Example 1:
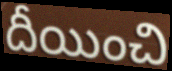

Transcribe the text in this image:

దీయించి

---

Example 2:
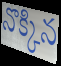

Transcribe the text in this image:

నొక్కిన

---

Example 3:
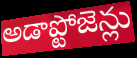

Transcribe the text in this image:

అడాప్టోజెన్లు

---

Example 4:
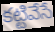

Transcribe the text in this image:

కట్టివేసే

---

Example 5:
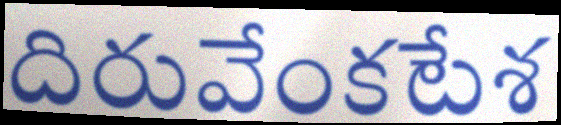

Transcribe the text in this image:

దిరువేంకటేశ